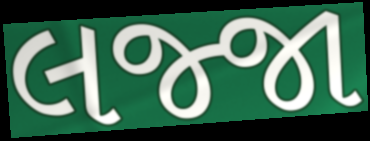
લજ્જા